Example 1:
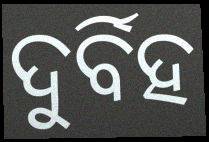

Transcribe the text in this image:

ଦୁର୍ବିହ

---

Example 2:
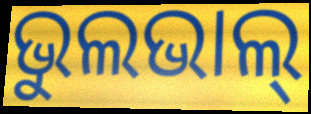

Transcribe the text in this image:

ଭୁଲଭାଲ୍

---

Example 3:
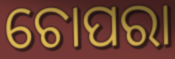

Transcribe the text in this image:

ଚୋପରା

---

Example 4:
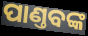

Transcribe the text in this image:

ପାଣ୍ତବଙ୍କ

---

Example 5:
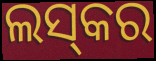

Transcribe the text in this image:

ଲସ୍‌କର